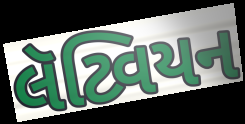
લૅટ્વિયન